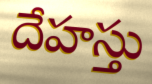
దేహస్తు